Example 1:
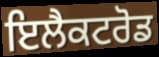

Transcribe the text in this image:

ਇਲੈਕਟਰੋਡ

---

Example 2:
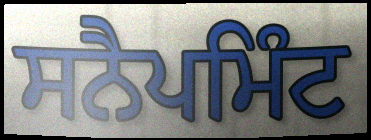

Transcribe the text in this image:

ਸਨੈਪਮਿੰਟ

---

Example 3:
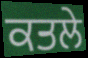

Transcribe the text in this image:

ਕਤਲੇ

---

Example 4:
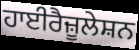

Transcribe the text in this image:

ਹਾਈਰੈਜ਼ੂਲੇਸ਼ਨ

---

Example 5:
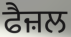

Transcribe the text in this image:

ਫੈਜ਼ਲ